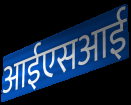
आईएसआई